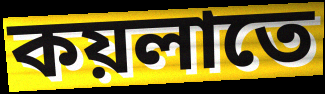
কয়লাতে